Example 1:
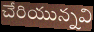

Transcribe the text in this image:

చేరియున్నవి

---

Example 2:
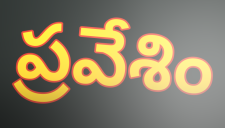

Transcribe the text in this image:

ప్రవేశిం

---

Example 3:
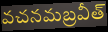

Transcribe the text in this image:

వచనమబ్రవీత్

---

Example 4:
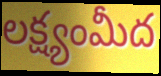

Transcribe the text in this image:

లక్ష్యంమీద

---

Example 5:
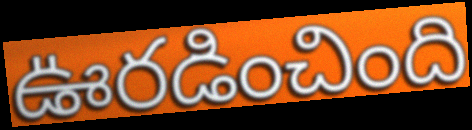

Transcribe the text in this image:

ఊరడించింది